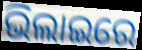
ଭିଲାଇରେ